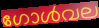
ഗോൾവല